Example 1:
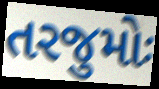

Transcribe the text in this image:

તરજુમોઃ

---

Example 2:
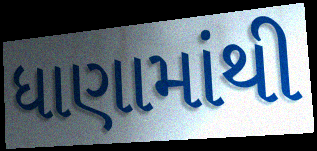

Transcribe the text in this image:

ધાણામાંથી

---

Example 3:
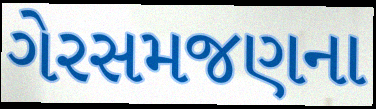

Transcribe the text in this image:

ગેરસમજણના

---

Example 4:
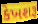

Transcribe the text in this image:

કેખશરૂ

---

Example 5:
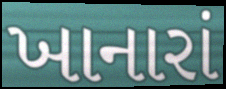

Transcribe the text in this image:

ખાનારાં